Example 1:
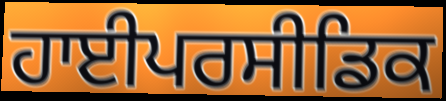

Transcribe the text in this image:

ਹਾਈਪਰਸੀਡਿਕ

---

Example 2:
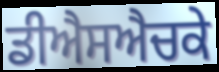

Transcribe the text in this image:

ਡੀਐਸਐਚਕੇ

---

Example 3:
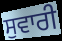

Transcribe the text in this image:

ਸੁਵਾਰੀ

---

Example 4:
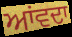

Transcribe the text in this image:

ਆਂਵਦਾ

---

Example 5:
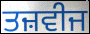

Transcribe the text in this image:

ਤਜ਼ਵੀਜ